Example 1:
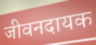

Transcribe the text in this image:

जीवनदायक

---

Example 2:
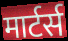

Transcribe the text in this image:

मार्टर्स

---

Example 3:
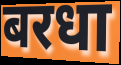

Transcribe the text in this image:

बरधा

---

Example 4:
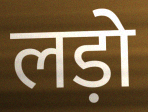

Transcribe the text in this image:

लड़ो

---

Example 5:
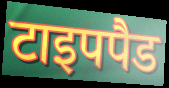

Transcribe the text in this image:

टाइपपैड